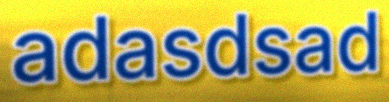
adasdsad